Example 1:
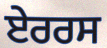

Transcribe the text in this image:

ਏਰਰਸ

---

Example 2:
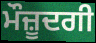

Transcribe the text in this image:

ਮੌਜ਼ੂਦਗੀ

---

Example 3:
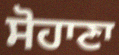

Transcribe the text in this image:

ਸੋਹਾਣਾ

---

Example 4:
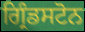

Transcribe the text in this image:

ਗ੍ਰਿੰਡਸਟੋਨ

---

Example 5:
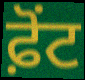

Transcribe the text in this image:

ਫ਼ੋਂਟ